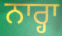
ਨਾਰ੍ਹਾ